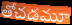
తోచడమూ